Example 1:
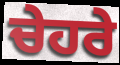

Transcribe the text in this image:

ਚੇਹਰੇ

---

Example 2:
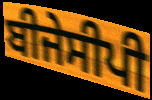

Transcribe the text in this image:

ਬੀਜੇਸੀਪੀ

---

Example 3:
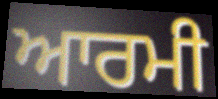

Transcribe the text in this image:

ਆਰਮੀ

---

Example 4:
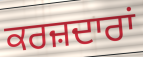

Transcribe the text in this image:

ਕਰਜ਼ਦਾਰਾਂ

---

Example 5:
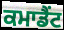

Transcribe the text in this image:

ਕਮਾਡੈਂਟ